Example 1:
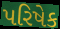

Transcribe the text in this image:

પરિષેક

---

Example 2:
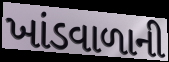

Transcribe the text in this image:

ખાંડવાળાની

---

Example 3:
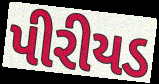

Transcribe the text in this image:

પીરીયડ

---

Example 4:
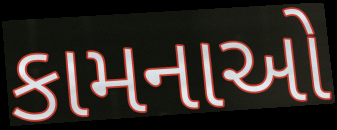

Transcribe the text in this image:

કામનાઓ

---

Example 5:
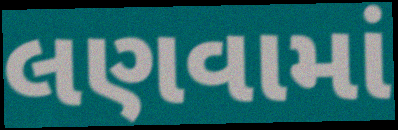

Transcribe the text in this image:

લણવામાં